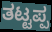
ತಟ್ಟಪ್ಪ